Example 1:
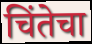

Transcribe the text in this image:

चिंतेचा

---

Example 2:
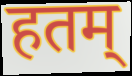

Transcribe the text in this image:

हतम्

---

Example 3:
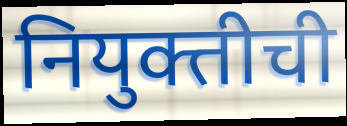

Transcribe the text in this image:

नियुक्तीची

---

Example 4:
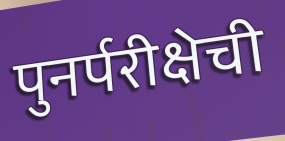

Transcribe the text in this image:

पुनर्परीक्षेची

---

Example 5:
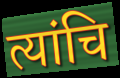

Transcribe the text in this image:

त्यांचि